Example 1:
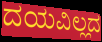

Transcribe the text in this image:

ದಯವಿಲ್ಲದ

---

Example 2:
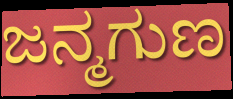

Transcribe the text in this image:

ಜನ್ಮಗುಣ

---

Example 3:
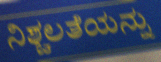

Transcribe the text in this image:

ನಿಶ್ಚಲತೆಯನ್ನು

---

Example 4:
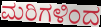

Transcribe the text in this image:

ಮರಿಗಳಿಂದ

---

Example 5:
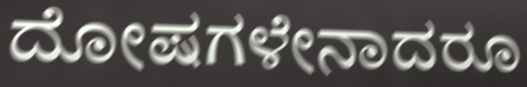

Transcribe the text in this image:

ದೋಷಗಳೇನಾದರೂ